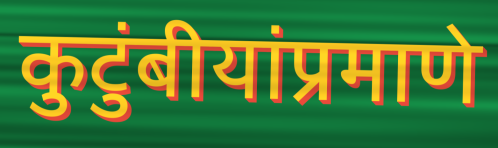
कुटुंबीयांप्रमाणे